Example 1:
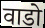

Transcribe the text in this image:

वाडो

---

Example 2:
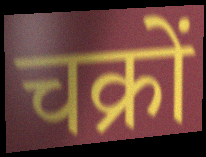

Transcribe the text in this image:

चक्रों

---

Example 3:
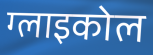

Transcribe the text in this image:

ग्लाइकोल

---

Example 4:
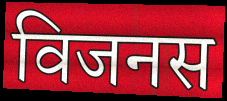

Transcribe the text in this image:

विजनस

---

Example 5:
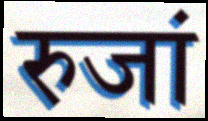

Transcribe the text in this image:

रुजां